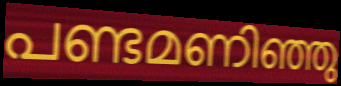
പണ്ടമണിഞ്ഞു